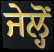
ਜੇਲ੍ਹੋਂ